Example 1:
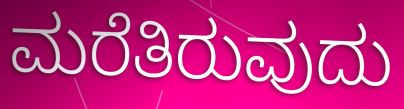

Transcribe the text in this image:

ಮರೆತಿರುವುದು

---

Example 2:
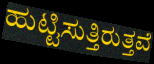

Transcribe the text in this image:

ಹುಟ್ಟಿಸುತ್ತಿರುತ್ತವೆ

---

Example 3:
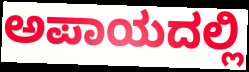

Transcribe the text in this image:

ಅಪಾಯದಲ್ಲಿ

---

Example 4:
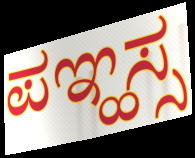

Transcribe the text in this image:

ಪಞ್ಹಸ್ಸ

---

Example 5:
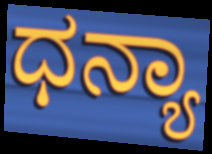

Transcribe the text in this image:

ಧನ್ಯಾ